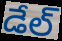
డేల్